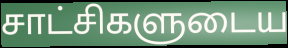
சாட்சிகளுடைய